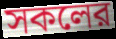
সকলের